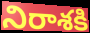
నిరాశకి